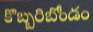
కొబ్బరిబోండం